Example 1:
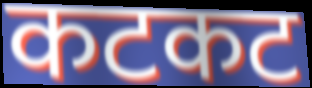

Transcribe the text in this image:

कटकट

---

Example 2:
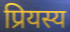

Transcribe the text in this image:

प्रियस्य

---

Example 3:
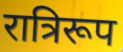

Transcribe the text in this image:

रात्रिरूप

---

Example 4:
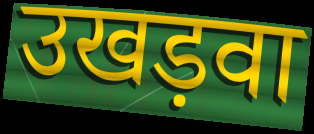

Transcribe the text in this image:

उखड़वा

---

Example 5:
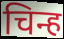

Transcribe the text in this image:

चिन्ह